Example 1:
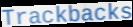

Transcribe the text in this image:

Trackbacks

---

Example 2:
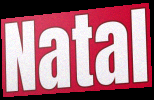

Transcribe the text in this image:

Natal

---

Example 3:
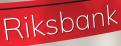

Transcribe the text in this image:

Riksbank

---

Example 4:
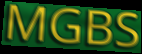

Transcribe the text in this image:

MGBS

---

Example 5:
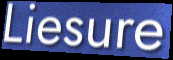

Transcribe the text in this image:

Liesure